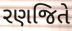
રણજિતે